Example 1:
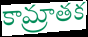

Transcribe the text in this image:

కామ్రాతక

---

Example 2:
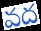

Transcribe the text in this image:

వద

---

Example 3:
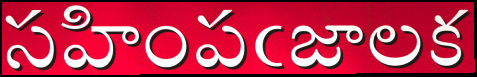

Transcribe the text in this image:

సహింపఁజాలక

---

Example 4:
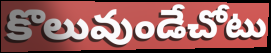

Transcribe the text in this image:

కొలువుండేచోటు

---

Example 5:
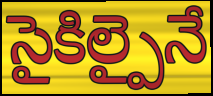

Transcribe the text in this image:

సైకిల్పైనే